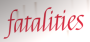
fatalities